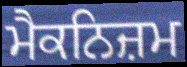
ਮੈਕਨਿਜ਼ਮ